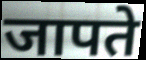
जापते